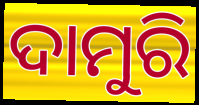
ଦାମୁରି